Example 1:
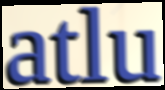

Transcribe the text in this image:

atlu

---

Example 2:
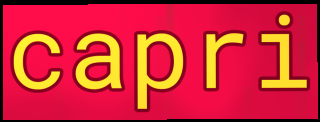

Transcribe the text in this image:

capri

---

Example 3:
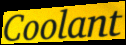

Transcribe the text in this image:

Coolant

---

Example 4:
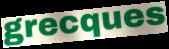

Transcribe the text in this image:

grecques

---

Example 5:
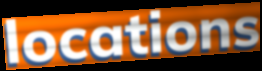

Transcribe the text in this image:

locations